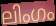
ലിംഗം